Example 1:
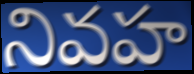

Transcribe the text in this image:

నివహ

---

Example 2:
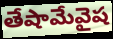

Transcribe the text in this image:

తేషామేవైష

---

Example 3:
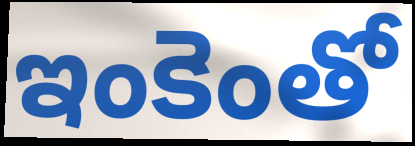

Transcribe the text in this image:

ఇంకెంతో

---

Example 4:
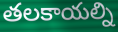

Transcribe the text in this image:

తలకాయల్ని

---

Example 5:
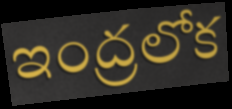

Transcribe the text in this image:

ఇంద్రలోక